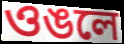
ওঙলে